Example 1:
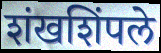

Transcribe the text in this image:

शंखशिंपले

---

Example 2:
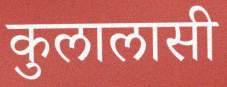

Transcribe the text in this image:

कुलालासी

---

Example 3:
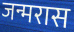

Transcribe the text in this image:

जन्मरास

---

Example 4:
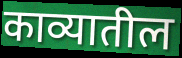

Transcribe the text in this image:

काव्यातील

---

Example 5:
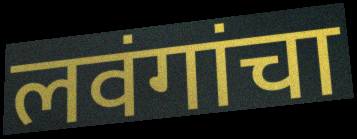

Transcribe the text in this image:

लवंगांचा